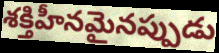
శక్తిహీనమైనప్పుడు